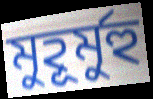
মুহূর্মুহু